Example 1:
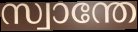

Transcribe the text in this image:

സ്വാന്തേ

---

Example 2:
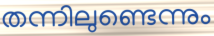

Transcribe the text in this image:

തന്നിലുണ്ടെന്നും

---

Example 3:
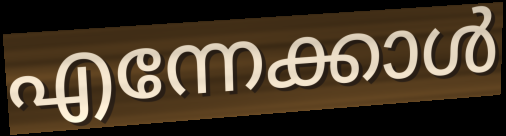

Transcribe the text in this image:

എന്നേക്കാൾ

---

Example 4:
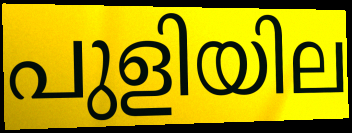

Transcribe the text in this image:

പുളിയില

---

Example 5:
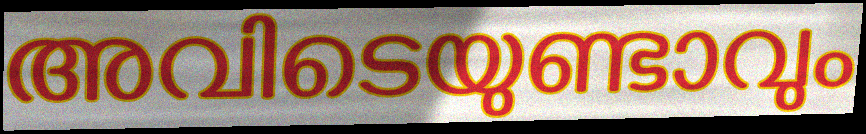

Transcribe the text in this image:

അവിടെയുണ്ടാവും